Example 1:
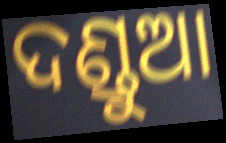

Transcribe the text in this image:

ଦଣ୍ଡୁଆ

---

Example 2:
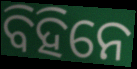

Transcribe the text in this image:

ବିହିନେ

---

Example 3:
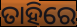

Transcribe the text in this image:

ତାହିରେ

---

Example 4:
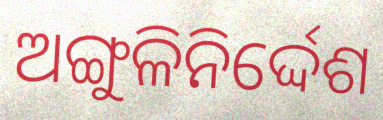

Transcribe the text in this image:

ଅଙ୍ଗୁଳିନିର୍ଦ୍ଦେଶ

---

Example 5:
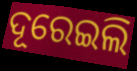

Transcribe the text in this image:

ଦୂରେଇଲି